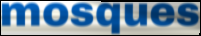
mosques